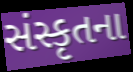
સંસ્કૃતના